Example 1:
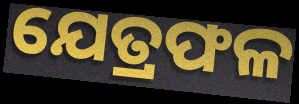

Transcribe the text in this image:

ଯେତ୍ରଫଳ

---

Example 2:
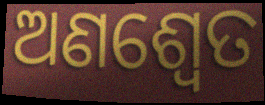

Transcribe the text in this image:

ଅଣଶ୍ୱେତ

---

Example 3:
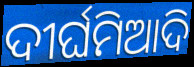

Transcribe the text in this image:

ଦୀର୍ଘମିଆଦି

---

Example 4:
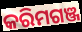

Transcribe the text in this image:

କରିମଗଞ୍ଜ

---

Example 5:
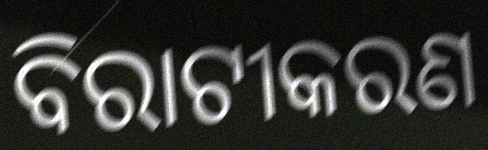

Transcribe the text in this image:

ବିରାଟୀକରଣ